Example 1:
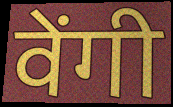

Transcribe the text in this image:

वेंगी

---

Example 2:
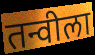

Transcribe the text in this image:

तन्वीला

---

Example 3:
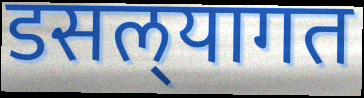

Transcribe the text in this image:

डसल्यागत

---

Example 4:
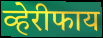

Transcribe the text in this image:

व्हेरीफाय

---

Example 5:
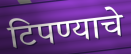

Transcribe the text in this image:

टिपण्याचे